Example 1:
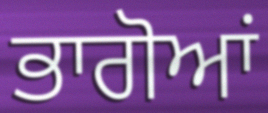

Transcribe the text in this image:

ਭਾਗੋਆਂ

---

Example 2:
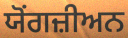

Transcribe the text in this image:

ਯੋਂਗਜ਼ੀਅਨ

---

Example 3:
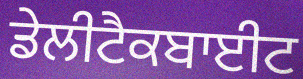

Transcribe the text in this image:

ਡੇਲੀਟੈਕਬਾਈਟ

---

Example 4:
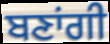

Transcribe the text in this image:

ਬਣਾਂਗੀ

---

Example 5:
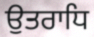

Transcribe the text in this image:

ਉਤਰਾਧਿ